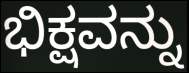
ಭಿಕ್ಷವನ್ನು